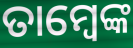
ତାମ୍ବେଙ୍କ